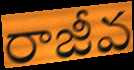
రాజీవ